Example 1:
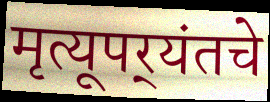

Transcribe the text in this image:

मृत्यूपर्यंतचे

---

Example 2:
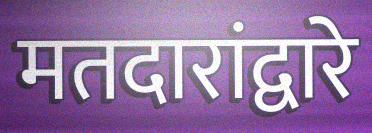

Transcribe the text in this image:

मतदारांद्वारे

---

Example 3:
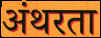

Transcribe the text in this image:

अंथरता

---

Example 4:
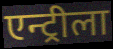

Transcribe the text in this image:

एन्ट्रीला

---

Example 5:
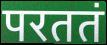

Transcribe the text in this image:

परततं